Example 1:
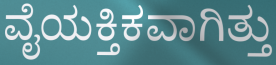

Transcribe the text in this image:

ವೈಯಕ್ತಿಕವಾಗಿತ್ತು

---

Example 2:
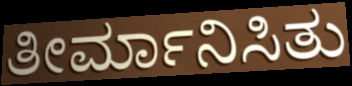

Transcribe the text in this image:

ತೀರ್ಮಾನಿಸಿತು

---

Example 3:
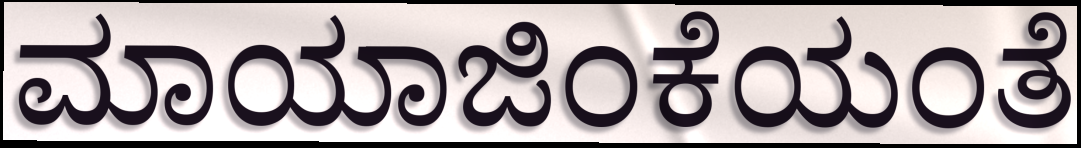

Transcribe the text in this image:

ಮಾಯಾಜಿಂಕೆಯಂತೆ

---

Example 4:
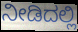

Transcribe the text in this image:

ನೀಡಿದಲ್ಲಿ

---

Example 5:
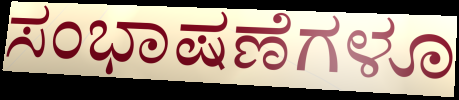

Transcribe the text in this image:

ಸಂಭಾಷಣೆಗಳೂ